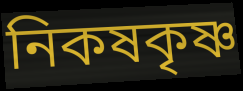
নিকষকৃষ্ণ